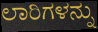
ಲಾರಿಗಳನ್ನು